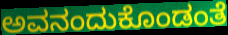
ಅವನಂದುಕೊಂಡಂತೆ